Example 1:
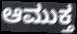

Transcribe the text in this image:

ಆಮುಕ್ತ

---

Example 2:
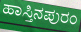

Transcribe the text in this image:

ಹಾಸ್ತಿನಪುರಂ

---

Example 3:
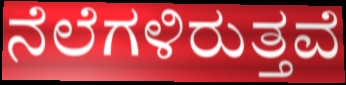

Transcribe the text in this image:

ನೆಲೆಗಳಿರುತ್ತವೆ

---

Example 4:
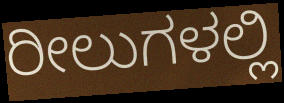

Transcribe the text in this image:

ರೀಲುಗಳಲ್ಲಿ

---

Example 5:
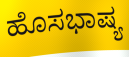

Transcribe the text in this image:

ಹೊಸಭಾಷ್ಯ